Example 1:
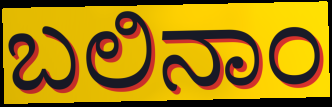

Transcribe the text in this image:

ಬಲಿನಾಂ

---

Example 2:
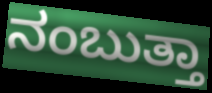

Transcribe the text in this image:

ನಂಬುತ್ತಾ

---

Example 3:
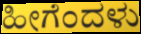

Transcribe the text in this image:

ಹೀಗೆಂದಳು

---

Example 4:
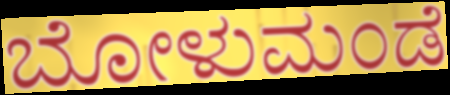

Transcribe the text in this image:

ಬೋಳುಮಂಡೆ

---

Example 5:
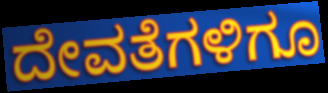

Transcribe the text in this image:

ದೇವತೆಗಳಿಗೂ